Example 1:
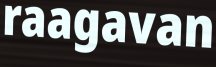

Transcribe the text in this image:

raagavan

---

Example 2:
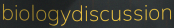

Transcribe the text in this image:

biologydiscussion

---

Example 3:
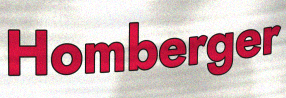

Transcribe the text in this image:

Homberger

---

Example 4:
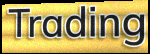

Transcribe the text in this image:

Trading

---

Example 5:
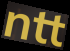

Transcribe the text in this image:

ntt